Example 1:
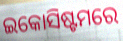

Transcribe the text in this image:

ଇକୋସିଷ୍ଟମରେ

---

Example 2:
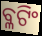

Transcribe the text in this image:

ବ୍ଳଟିଂ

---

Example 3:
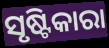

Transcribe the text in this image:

ସୃଷ୍ଟିକାରା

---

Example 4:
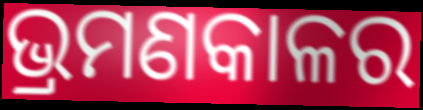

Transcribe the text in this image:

ଭ୍ରମଣକାଳର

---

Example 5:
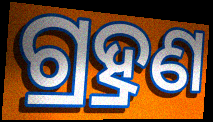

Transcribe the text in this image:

ଗ୍ର୍ରହଣ